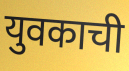
युवकाची